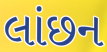
લાંછન